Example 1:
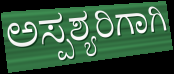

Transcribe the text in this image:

ಅಸ್ಪಶ್ಯರಿಗಾಗಿ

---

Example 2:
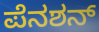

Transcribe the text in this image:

ಪೆನಶನ್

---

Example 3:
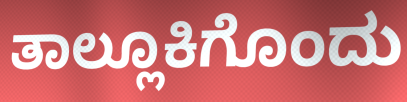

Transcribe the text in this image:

ತಾಲ್ಲೂಕಿಗೊಂದು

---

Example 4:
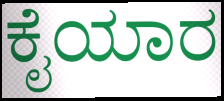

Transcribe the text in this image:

ಕೈಯಾರ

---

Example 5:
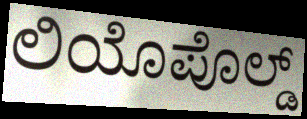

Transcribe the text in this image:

ಲಿಯೊಪೊಲ್ಡ್